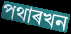
পথাৰখন